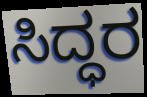
ಸಿದ್ಧರ